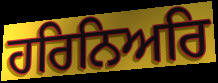
ਹਰਿਨਿਅਰਿ